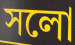
সলো